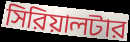
সিরিয়ালটার